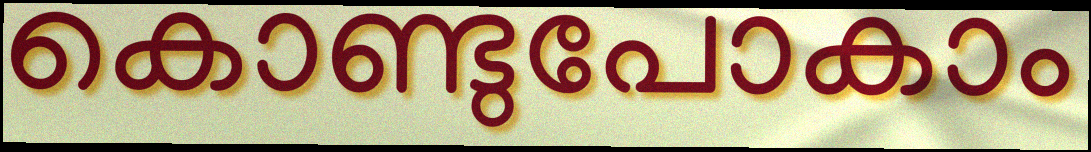
കൊണ്ടുപോകാം